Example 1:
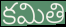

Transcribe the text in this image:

కమితి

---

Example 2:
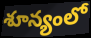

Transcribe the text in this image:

శూన్యంలో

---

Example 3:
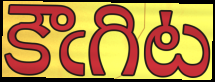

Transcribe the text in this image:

కౌఁగిట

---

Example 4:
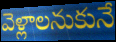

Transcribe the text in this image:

వెళ్లాలనుకునే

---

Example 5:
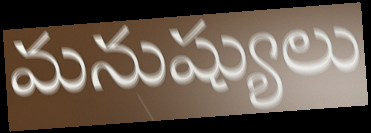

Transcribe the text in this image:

మనుష్యులు